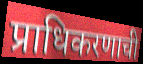
प्राधिकरणाची